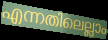
എന്നതിലെല്ലാം